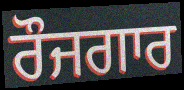
ਰੌਜਗਾਰ